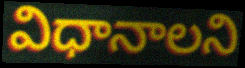
విధానాలని